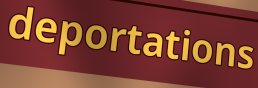
deportations